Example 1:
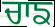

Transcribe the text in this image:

ਚਾਙ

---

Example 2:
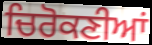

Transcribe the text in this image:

ਚਿਰੋਕਣੀਆਂ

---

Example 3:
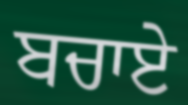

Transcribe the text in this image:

ਬਚਾਏ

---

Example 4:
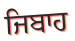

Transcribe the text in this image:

ਜਿਬਾਹ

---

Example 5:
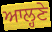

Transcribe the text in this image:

ਆਲ੍ਹਣੇ